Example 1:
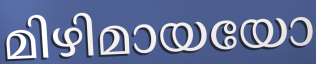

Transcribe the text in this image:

മിഴിമായയോ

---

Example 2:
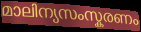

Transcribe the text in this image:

മാലിന്യസംസ്കരണം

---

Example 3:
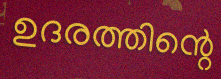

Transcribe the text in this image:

ഉദരത്തിന്റെ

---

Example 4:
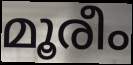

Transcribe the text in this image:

മൂരീം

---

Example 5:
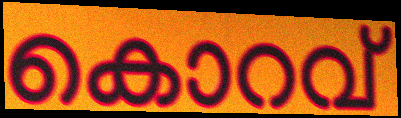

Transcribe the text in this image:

കൊറവ്